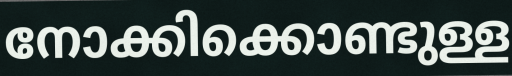
നോക്കിക്കൊണ്ടുള്ള